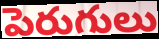
పెరుగులు